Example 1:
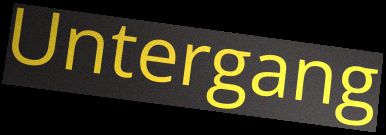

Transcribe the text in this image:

Untergang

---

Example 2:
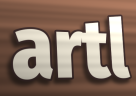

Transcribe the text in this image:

artl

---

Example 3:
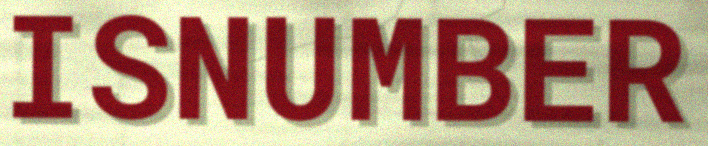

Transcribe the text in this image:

ISNUMBER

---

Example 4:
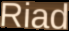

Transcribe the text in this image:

Riad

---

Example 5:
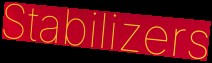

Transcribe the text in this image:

Stabilizers